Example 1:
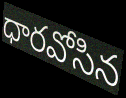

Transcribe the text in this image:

ధారవోసిన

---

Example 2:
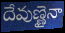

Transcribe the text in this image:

దేవుణ్ణైనా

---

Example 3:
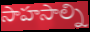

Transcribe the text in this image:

సాహసాల్ని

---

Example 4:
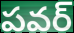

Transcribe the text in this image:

పవర్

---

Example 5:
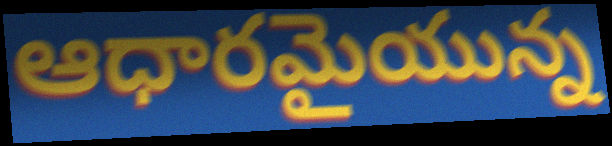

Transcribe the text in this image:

ఆధారమైయున్న